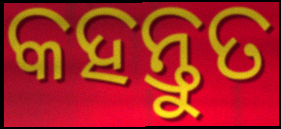
କହନ୍ତୁତ